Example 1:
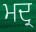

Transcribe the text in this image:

ਮਦ੍ਰ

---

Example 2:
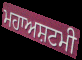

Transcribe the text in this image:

ਮਹਾਅਸ਼ਟਮੀ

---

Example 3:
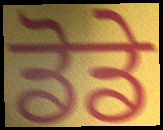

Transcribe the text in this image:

ਡੋਡੇ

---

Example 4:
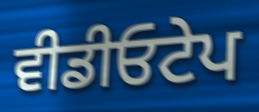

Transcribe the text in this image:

ਵੀਡੀਓਟੇਪ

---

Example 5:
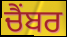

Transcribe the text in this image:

ਚੈਂਬਰ